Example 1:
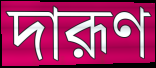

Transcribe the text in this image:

দারূণ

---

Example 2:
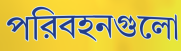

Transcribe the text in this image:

পরিবহনগুলো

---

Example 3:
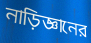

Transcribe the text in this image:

নাড়িজ্ঞানের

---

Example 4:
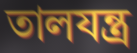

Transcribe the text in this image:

তালযন্ত্র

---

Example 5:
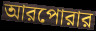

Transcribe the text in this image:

আরপোরার